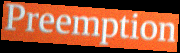
Preemption